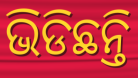
ଭିଡିଛନ୍ତି